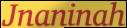
Jnaninah